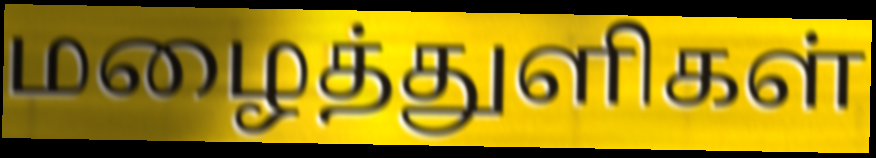
மழைத்துளிகள்